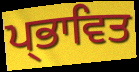
ਪ੍ਭਾਵਿਤ